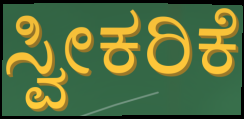
ಸ್ವೀಕರಿಕೆ